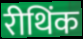
रीथिंक